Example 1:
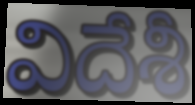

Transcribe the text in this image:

విదేశీ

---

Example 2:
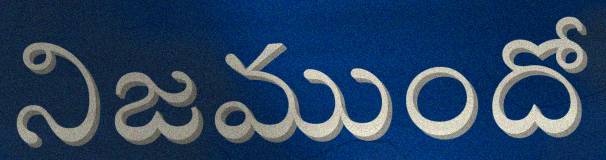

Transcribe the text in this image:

నిజముందో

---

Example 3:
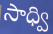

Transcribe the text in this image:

సాధ్వి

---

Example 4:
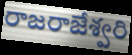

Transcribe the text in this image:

రాజరాజేశ్వరి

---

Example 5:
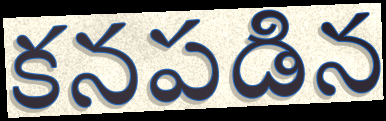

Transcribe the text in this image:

కనపడిన